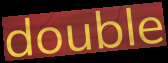
double